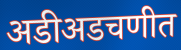
अडीअडचणीत